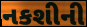
નકશીની